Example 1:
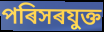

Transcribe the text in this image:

পৰিসৰযুক্ত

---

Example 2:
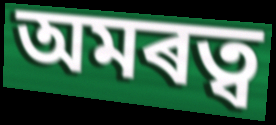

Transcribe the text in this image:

অমৰত্ব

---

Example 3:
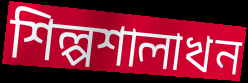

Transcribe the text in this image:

শিল্পশালাখন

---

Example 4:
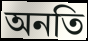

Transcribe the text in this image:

অনতি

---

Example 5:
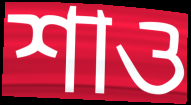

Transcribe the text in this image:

শাও